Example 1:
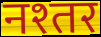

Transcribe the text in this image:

नश्तर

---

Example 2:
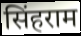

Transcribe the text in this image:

सिंहराम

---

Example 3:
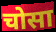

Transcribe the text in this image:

चोसा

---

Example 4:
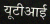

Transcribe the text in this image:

यूटीआई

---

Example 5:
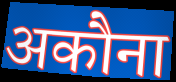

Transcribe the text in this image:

अकौना